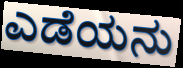
ಎಡೆಯನು